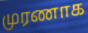
முரணாக